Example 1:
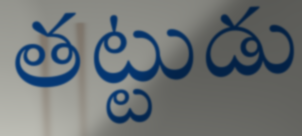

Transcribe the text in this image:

తట్టుడు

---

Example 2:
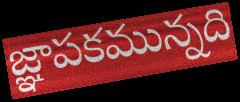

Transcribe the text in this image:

జ్ఞాపకమున్నది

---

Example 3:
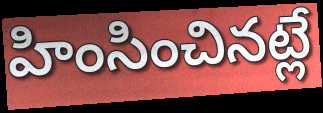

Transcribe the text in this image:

హింసించినట్లే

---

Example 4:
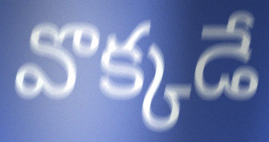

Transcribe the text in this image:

వొక్కడే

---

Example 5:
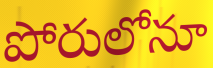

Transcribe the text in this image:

పోరులోనూ